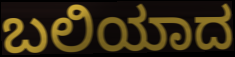
ಬಲಿಯಾದ